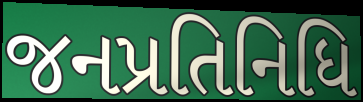
જનપ્રતિનિધિ